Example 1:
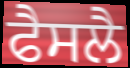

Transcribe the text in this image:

ਫੈਸਲੈ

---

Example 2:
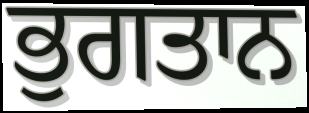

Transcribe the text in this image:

ਭੁਗਤਾਨ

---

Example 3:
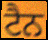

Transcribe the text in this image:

ਟੈਨ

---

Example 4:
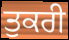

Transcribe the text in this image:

ਤੁਕਰੀ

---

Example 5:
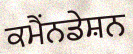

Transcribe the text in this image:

ਕਮੈਂਨਡੇਸ਼ਨ